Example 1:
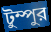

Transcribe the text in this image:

টুম্পুর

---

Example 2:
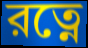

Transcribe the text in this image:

রত্নে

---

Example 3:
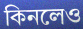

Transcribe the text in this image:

কিনলেও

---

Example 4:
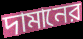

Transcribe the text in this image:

দামানের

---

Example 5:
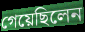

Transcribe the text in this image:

গেয়েছিলেন